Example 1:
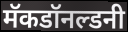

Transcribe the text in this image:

मॅकडॉनल्डनी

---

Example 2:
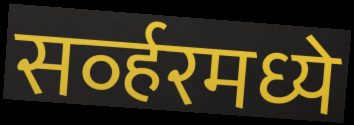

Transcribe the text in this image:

सर्व्हरमध्ये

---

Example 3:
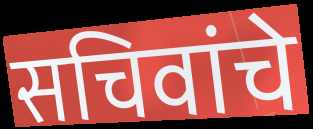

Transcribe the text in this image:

सचिवांचे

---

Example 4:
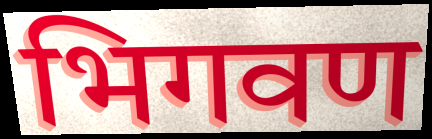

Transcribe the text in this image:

भिगवण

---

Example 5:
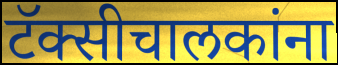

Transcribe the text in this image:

टॅक्सीचालकांना